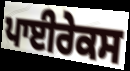
ਪਾਈਰੇਕਸ